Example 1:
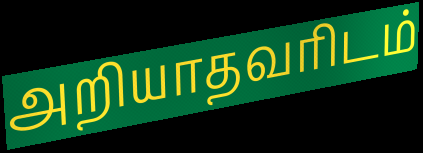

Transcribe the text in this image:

அறியாதவரிடம்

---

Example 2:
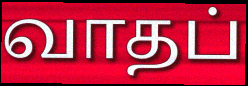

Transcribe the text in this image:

வாதப்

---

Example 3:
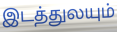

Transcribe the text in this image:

இடத்துலயும்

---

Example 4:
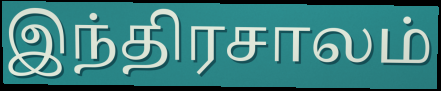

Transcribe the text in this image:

இந்திரசாலம்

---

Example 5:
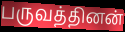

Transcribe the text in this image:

பருவத்தினன்